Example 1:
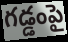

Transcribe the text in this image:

గడ్డంపై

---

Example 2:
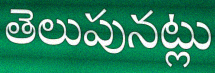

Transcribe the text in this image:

తెలుపునట్లు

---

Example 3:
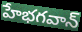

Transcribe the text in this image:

హేభగవాన్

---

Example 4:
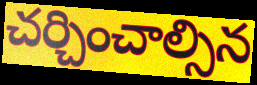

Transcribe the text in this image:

చర్చించాల్సిన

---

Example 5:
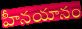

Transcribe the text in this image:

హీనయానం